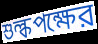
শুল্কপক্ষের